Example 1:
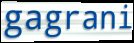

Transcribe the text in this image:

gagrani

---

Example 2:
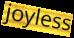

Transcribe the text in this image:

joyless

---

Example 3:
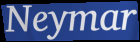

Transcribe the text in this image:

Neymar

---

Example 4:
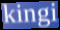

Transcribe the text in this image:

kingi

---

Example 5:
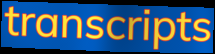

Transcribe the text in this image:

transcripts